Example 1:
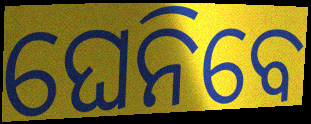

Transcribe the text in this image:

ଘେନିବେ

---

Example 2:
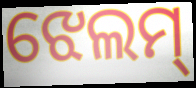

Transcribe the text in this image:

ଝେଲମ୍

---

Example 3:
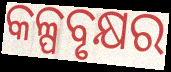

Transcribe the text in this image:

କଳ୍ପବୃକ୍ଷର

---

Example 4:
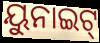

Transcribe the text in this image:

ୟୁନାଇଟ୍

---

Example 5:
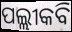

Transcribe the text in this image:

ପଲ୍ଲୀକବି